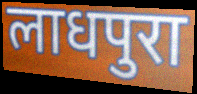
लाधपुरा